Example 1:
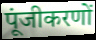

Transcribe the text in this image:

पूंजीकरणों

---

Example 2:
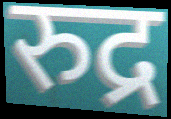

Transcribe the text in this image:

रुद्र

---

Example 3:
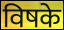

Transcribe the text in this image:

विषके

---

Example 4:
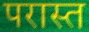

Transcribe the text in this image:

परास्त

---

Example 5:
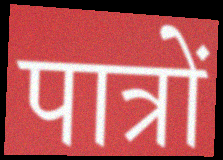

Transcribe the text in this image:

पात्रों